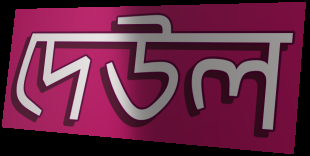
দেউল